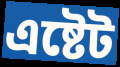
এষ্টেট